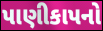
પાણીકાપનો